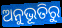
ଅନୁଭୂତିରୁ